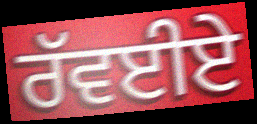
ਰੱਵਈਏ